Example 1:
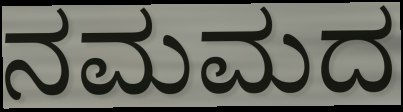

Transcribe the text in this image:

ನಮಮದ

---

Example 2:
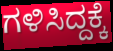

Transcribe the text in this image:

ಗಳಿಸಿದ್ದಕ್ಕೆ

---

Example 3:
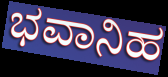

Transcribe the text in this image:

ಭವಾನಿಹ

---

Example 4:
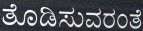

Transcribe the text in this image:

ತೊಡಿಸುವರಂತೆ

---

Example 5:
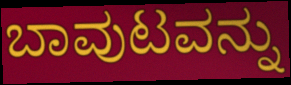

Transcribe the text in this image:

ಬಾವುಟವನ್ನು